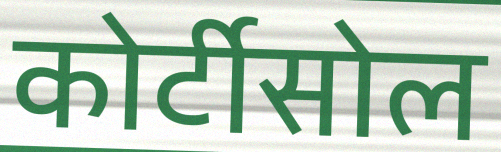
कोर्टीसोल